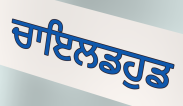
ਚਾਇਲਡਹੁਡ